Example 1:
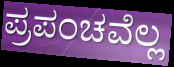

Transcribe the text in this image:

ಪ್ರಪಂಚವೆಲ್ಲ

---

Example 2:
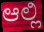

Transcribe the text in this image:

ಆಲ್ಲಿ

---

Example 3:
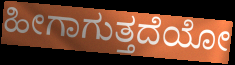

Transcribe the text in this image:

ಹೀಗಾಗುತ್ತದೆಯೋ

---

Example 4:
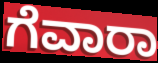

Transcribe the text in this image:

ಗೆವಾರಾ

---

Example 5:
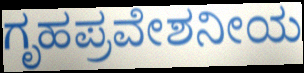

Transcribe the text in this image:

ಗೃಹಪ್ರವೇಶನೀಯ